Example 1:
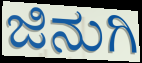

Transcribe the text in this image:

ಜಿನುಗಿ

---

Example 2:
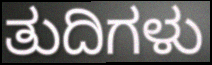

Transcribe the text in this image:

ತುದಿಗಳು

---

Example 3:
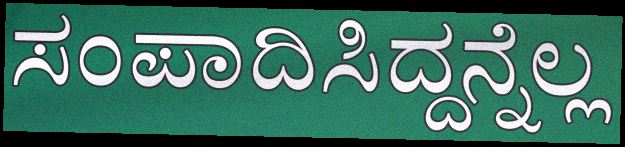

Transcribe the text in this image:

ಸಂಪಾದಿಸಿದ್ದನ್ನೆಲ್ಲ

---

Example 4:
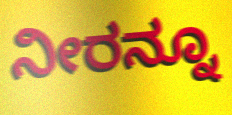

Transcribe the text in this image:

ನೀರನ್ನೂ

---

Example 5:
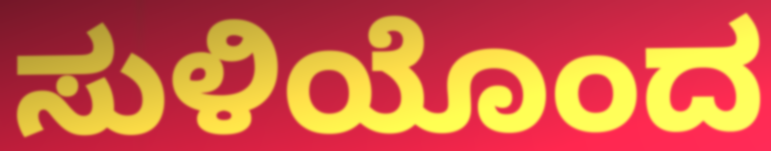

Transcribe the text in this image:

ಸುಳಿಯೊಂದ